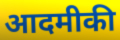
आदमीकी